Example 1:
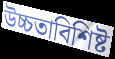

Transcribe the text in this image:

উচ্চতাবিশিষ্ট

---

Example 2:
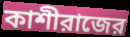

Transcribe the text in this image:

কাশীরাজের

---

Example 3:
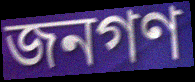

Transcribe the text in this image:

জনগণ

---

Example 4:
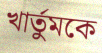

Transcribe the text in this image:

খার্তুমকে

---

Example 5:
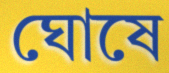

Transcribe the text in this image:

ঘোষে